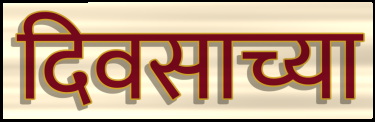
दिवसाच्या